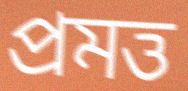
প্রমত্ত